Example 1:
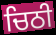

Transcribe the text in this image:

ਚਿਠੀ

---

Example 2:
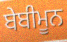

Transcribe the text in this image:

ਬੇਬੀਮੂਨ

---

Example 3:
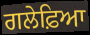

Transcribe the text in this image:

ਗਲੇਫ਼ਿਆ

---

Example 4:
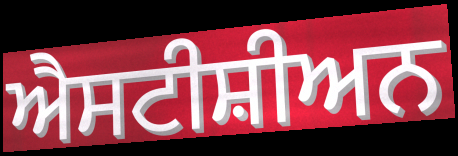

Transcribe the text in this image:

ਐਸਟੀਸ਼ੀਅਨ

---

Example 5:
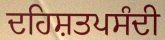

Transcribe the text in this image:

ਦਹਿਸ਼ਤਪਸੰਦੀ